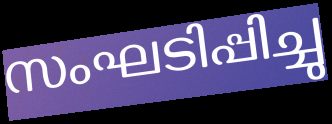
സംഘടിപ്പിച്ചു